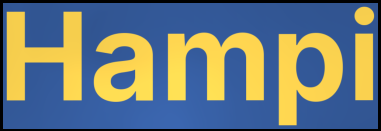
Hampi